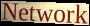
Network